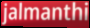
jalmanthi